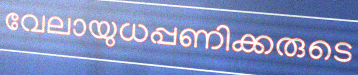
വേലായുധപ്പണിക്കരുടെ